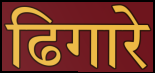
ढिगारे